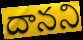
దానని